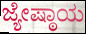
ಜ್ಯೇಷ್ಠಾಯ